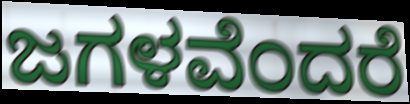
ಜಗಳವೆಂದರೆ